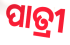
ପାତ୍ରୀ